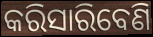
କରିସାରିବେଣି